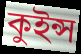
কুইন্স